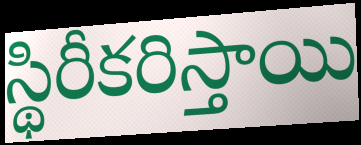
స్థిరీకరిస్తాయి